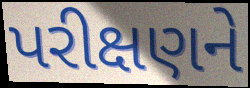
પરીક્ષણને